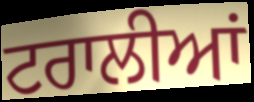
ਟਰਾਲੀਆਂ